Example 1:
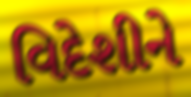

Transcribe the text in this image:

વિદેશીને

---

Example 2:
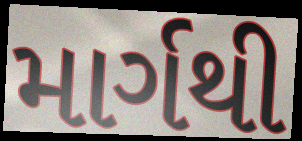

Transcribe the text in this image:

માર્ગથી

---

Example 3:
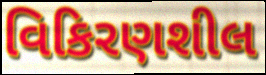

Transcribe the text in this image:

વિકિરણશીલ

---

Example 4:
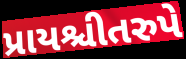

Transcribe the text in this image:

પ્રાયશ્ચીતરુપે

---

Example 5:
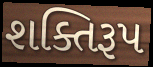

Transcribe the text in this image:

શક્તિરૂપ